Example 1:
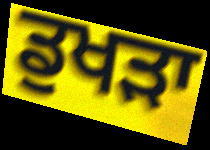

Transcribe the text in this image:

ਡੁਖੜਾ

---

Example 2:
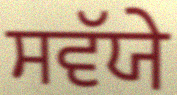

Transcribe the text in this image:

ਸਵੱਯੇ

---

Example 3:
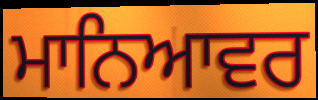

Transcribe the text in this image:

ਮਾਨਿਆਵਰ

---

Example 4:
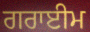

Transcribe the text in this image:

ਗਰਾਈਮ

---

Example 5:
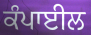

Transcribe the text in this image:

ਕੰਪਾਈਲ